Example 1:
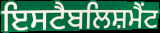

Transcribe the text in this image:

ਇਸਟੈਬਲਿਸ਼ਮੈਂਟ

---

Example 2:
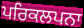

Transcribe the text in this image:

ਪਰਿਕਲਪਨਾ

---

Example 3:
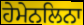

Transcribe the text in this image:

ਹੇਮੇਨਲਿਨਾ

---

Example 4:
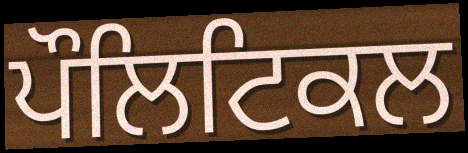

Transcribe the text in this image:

ਪੌਲਿਟਿਕਲ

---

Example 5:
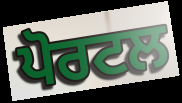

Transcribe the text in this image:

ਪੋਰਟਲ